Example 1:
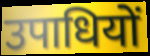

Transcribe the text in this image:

उपाधियों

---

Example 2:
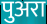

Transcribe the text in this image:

पुअरा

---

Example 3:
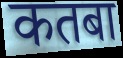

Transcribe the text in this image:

कतबा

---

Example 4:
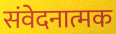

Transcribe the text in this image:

संवेदनात्मक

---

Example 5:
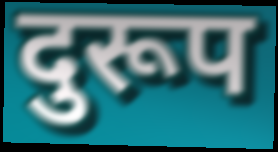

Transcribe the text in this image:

दुरूप